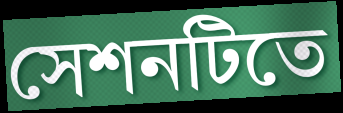
সেশনটিতে